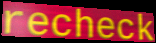
recheck